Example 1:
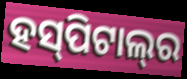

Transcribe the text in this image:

ହସ୍‍ପିଟାଲ୍‍ର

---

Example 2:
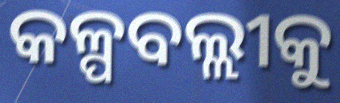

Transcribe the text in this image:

କଳ୍ପବଲ୍ଲୀକୁ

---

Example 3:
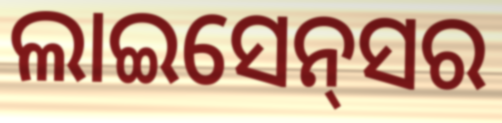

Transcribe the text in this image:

ଲାଇସେନ୍‌ସର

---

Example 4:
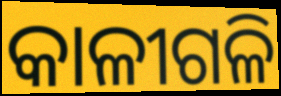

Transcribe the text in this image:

କାଳୀଗଳି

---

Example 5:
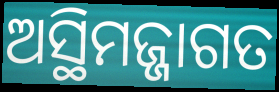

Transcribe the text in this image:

ଅସ୍ଥିମଜ୍ଜାଗତ